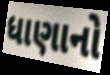
ધાણાનો